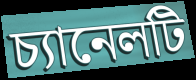
চ্যানেলটি